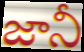
జానీ